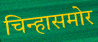
चिन्हासमोर